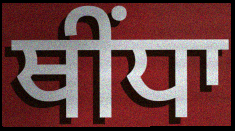
ਥੀਂਧਾ